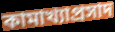
কামাখ্যাপ্রসাদ